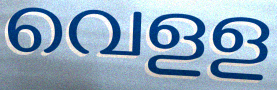
വെളള